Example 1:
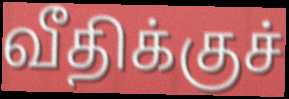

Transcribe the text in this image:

வீதிக்குச்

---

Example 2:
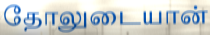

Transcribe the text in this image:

தோலுடையான்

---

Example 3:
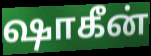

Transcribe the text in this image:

ஷாகீன்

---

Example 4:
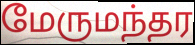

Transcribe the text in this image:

மேருமந்தர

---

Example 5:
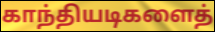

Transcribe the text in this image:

காந்தியடிகளைத்